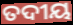
ତଦୀୟ